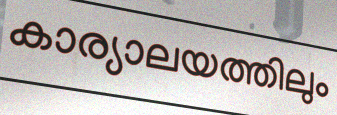
കാര്യാലയത്തിലും